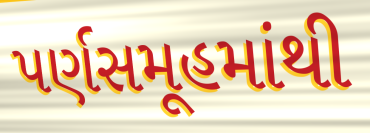
પર્ણસમૂહમાંથી